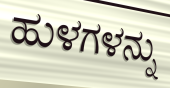
ಹುಳಗಳನ್ನು